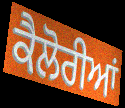
ਕੈਲੋਰੀਆਂ